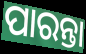
ପାରନ୍ତା